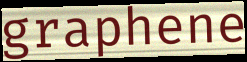
graphene